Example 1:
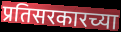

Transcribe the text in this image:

प्रतिसरकारच्या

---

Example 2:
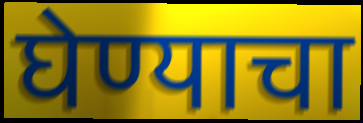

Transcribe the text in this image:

घेण्याचा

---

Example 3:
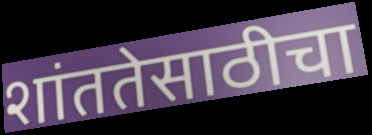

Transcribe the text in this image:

शांततेसाठीचा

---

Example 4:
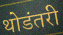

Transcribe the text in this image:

थोडंतरी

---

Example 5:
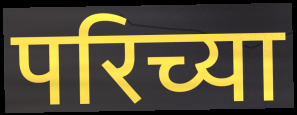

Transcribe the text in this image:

परिच्या